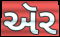
ઍર